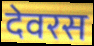
देवरस